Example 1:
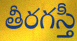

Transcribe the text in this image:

తీరగస్తీ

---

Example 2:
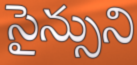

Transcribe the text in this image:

సైన్సుని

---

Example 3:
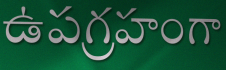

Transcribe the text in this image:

ఉపగ్రహంగా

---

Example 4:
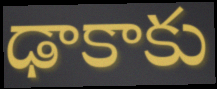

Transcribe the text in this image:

ఢాకాకు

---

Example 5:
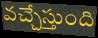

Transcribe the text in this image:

వచ్చేస్తుంది